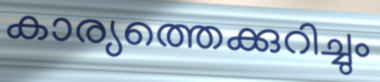
കാര്യത്തെക്കുറിച്ചും